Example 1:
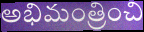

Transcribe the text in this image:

అభిమంత్రించి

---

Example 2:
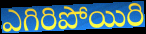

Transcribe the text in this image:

ఎగిరిపోయిరి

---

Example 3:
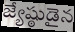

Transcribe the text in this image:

జ్యేష్ఠుడైన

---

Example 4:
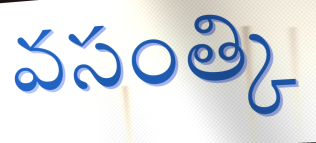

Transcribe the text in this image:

వసంత్కి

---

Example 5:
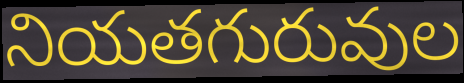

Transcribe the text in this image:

నియతగురువుల